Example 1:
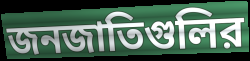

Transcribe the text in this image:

জনজাতিগুলির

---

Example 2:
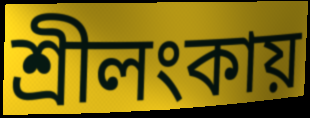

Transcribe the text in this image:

শ্রীলংকায়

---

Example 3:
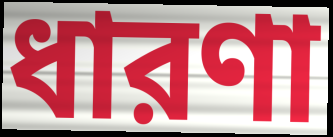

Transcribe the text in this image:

ধারণা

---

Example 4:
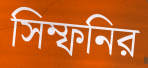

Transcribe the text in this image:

সিম্ফনির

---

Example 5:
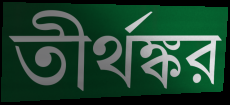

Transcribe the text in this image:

তীর্থঙ্কর